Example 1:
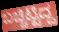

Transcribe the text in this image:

ಬಚ್ಚಿಟ್ಟಿದ್ದ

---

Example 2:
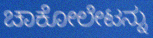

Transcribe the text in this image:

ಚಾಕೋಲೇಟನ್ನು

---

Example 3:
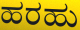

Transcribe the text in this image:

ಹರಹು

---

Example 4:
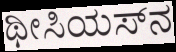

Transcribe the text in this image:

ಥೀಸಿಯಸ್‌ನ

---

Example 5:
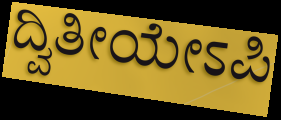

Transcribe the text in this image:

ದ್ವಿತೀಯೇಽಪಿ